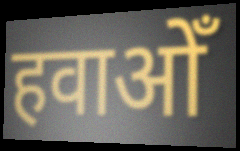
हवाओँ